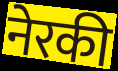
नेरकी